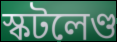
স্কটলেণ্ড